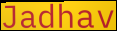
Jadhav